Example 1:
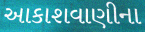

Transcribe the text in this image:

આકાશવાણીના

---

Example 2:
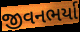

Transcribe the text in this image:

જીવનભર્યા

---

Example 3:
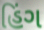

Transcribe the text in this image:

હિંગ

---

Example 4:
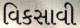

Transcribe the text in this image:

વિકસાવી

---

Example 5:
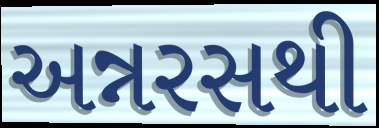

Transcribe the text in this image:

અન્નરસથી